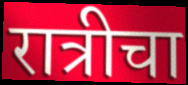
रात्रीचा